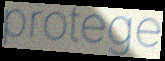
protege